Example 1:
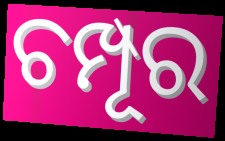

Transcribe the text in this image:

ଚମ୍ପୂର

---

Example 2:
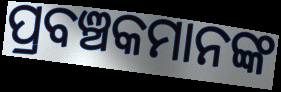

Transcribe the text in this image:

ପ୍ରବଞ୍ଚକମାନଙ୍କ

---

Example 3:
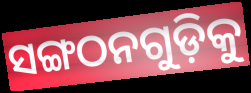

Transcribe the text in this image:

ସଙ୍ଗଠନଗୁଡ଼ିକୁ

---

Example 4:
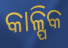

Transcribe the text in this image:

କାଳ୍ପିକ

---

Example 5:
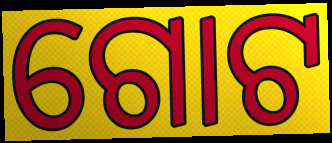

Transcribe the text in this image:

ଗୋଟ